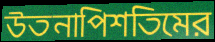
উতনাপিশতিমের